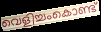
വെളിച്ചംകൊണ്ട്